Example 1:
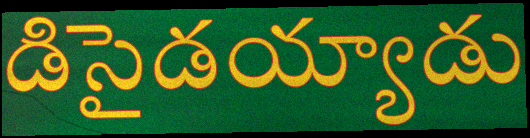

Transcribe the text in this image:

డిసైడయ్యాడు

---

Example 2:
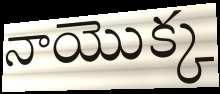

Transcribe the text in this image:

నాయొక్క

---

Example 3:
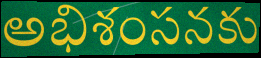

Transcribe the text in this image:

అభిశంసనకు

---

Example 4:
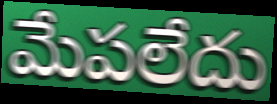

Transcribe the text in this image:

మేపలేదు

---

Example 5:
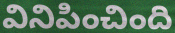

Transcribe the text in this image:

వినిపించింది